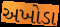
અખોડા